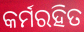
କର୍ମରହିତ